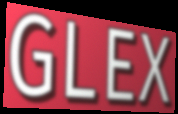
GLEX